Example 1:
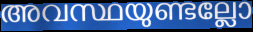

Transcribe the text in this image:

അവസ്ഥയുണ്ടല്ലോ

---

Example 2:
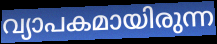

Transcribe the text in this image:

വ്യാപകമായിരുന്ന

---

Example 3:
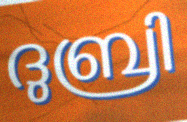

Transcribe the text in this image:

ദുബ്രി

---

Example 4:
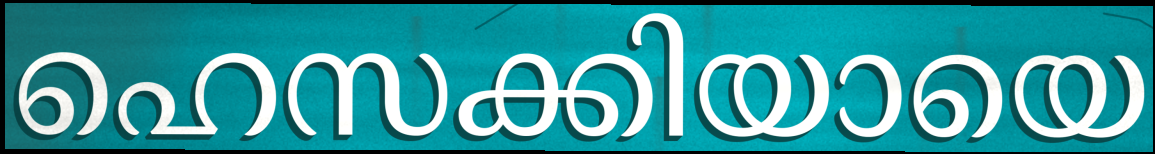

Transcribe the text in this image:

ഹെസക്കിയായെ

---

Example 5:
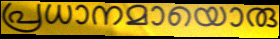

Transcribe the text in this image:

പ്രധാനമായൊരു